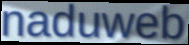
naduweb